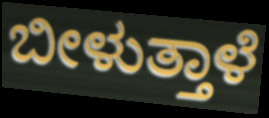
ಬೀಳುತ್ತಾಳೆ